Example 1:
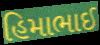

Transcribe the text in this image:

હિમાભાઈ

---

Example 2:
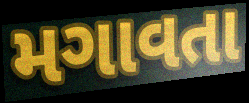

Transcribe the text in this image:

મગાવતા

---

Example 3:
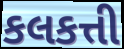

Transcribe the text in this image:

કલકત્તી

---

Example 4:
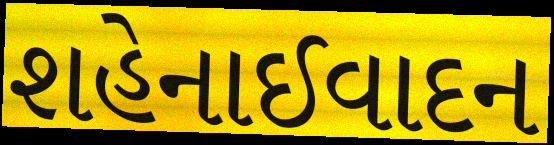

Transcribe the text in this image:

શહેનાઈવાદન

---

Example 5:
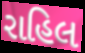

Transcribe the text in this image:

રાહિલ